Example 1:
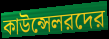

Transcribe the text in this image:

কাউন্সেলরদের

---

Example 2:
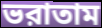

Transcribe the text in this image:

ভরাতাম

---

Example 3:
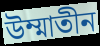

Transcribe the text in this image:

উম্মাতীন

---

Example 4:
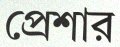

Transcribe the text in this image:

প্রেশার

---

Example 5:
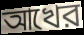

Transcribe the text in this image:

আখের